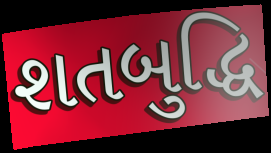
શતબુદ્ધિ